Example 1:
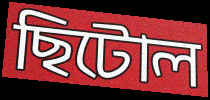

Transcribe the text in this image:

ছিটোল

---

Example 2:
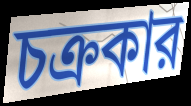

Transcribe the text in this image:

চক্রকার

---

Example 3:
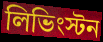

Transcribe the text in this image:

লিভিংস্টন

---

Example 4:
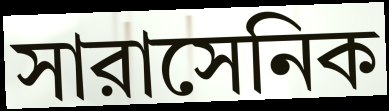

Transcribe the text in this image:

সারাসেনিক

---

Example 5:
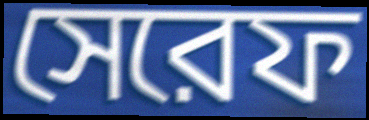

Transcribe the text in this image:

সেরেফ